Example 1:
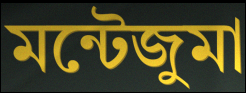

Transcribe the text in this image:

মন্টেজুমা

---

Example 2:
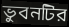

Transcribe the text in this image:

ভুবনটির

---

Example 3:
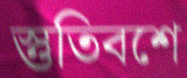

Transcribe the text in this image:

স্তুতিবশে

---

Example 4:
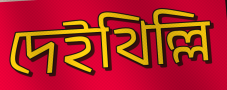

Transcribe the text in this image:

দেইথিল্লি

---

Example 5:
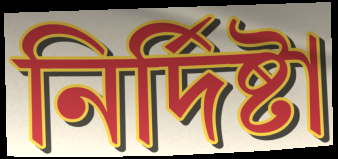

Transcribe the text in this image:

নির্দিষ্টা